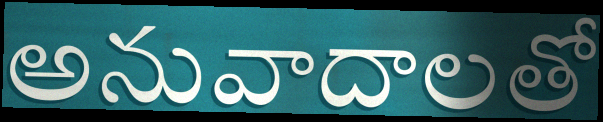
అనువాదాలతో